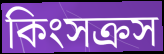
কিংসক্রস